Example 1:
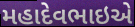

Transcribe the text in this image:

મહાદેવભાઇએ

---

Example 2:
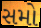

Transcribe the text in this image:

સમો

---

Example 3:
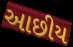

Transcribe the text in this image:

આછીય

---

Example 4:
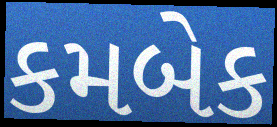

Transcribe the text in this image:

કમબેક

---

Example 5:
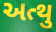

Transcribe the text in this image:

અત્થુ